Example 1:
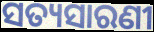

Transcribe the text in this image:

ସତ୍ୟସାରଣୀ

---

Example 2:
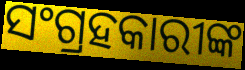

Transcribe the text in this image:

ସଂଗ୍ରହକାରୀଙ୍କ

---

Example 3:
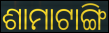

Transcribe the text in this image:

ଶାମାଟାଙ୍ଗି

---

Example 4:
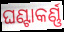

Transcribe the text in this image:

ଘଣ୍ଟାକର୍ଣ୍ଣ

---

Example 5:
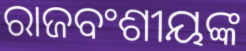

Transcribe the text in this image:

ରାଜବଂଶୀୟଙ୍କ